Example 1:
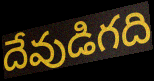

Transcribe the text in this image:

దేవుడిగది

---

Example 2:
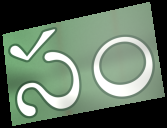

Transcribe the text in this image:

సం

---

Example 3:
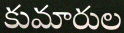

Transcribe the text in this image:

కుమారుల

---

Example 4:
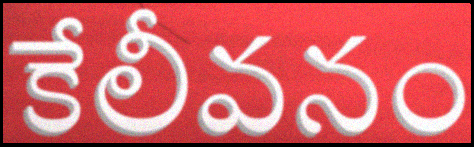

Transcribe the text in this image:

కేలీవనం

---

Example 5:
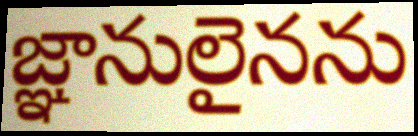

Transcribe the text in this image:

జ్ఞానులైనను